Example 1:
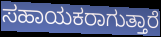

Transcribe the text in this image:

ಸಹಾಯಕರಾಗುತ್ತಾರೆ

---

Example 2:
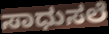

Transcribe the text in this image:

ಸಾಧುಸಲೆ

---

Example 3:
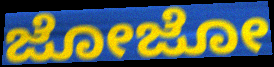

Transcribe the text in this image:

ಜೋಜೋ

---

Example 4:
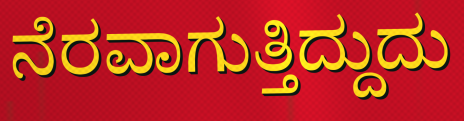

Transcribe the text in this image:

ನೆರವಾಗುತ್ತಿದ್ದುದು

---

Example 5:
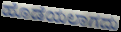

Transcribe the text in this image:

ಹೊಡೆಯಲಾಗದು